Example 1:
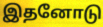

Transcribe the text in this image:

இதனோடு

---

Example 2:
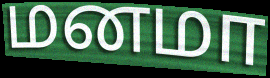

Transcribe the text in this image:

மனமா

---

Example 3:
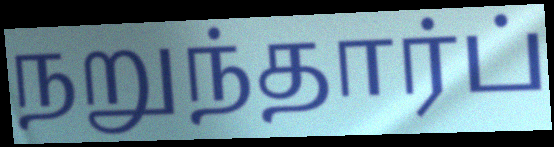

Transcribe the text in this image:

நறுந்தார்ப்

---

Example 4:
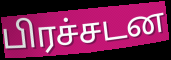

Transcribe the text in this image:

பிரச்சடன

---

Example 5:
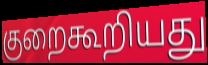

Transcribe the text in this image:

குறைகூறியது